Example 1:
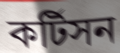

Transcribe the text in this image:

কর্টিসন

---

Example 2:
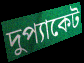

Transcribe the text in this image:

দুপ্যাকেট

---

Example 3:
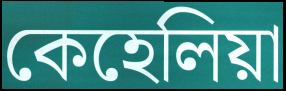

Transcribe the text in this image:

কেহেলিয়া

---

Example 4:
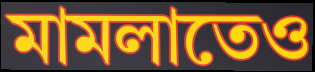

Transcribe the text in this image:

মামলাতেও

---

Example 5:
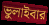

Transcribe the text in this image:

ভুলাইবার